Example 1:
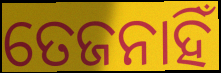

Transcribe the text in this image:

ତେଜନାହିଁ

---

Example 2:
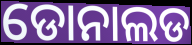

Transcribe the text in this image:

ଡୋନାଲଡ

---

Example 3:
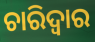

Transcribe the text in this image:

ଚାରିଦ୍ୱାର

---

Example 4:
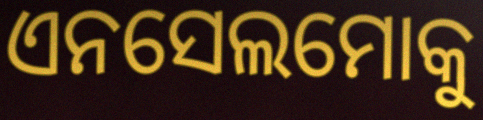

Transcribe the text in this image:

ଏନସେଲମୋକୁ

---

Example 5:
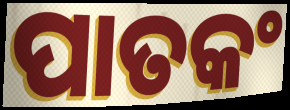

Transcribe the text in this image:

ପାତକଂ